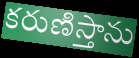
కరుణిస్తాను